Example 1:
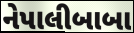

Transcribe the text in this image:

નેપાલીબાબા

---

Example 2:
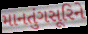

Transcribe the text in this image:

માનતુંગસૂરિને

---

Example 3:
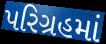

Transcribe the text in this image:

પરિગ્રહમાં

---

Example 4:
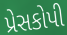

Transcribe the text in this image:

પ્રેસકોપી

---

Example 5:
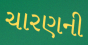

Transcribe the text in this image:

ચારણની